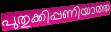
പുതുക്കിപ്പണിയാത്ത